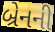
બ્રેનની